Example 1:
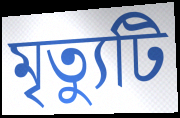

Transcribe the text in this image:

মৃত্যুটি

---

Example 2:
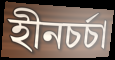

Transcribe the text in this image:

হীনচর্চা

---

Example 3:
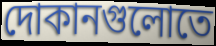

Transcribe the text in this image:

দোকানগুলোতে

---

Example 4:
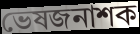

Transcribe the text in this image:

ভেষজনাশক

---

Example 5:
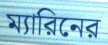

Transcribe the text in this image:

ম্যারিনের